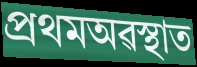
প্ৰথমঅৱস্থাত